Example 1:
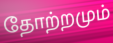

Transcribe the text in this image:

தோற்றமும்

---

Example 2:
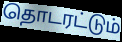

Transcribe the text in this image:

தொடரட்டும்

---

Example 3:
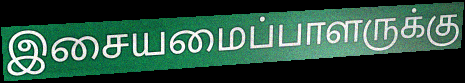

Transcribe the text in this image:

இசையமைப்பாளருக்கு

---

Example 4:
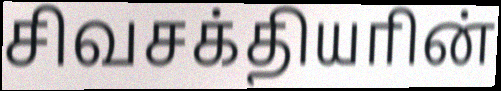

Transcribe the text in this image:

சிவசக்தியரின்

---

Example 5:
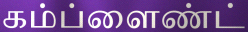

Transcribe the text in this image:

கம்ப்ளைண்ட்